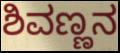
ಶಿವಣ್ಣನ